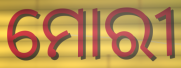
ମୋରୀ